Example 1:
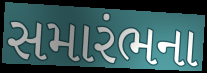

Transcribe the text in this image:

સમારંભના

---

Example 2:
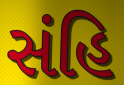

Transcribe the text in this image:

સંહિ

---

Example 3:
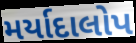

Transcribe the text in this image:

મર્યાદાલોપ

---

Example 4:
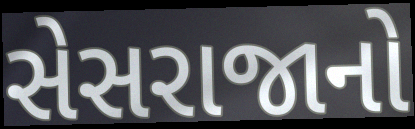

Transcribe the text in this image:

સેસરાજાનો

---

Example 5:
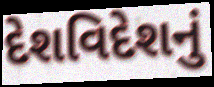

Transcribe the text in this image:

દેશવિદેશનું